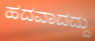
ಹದವಾದದ್ದು